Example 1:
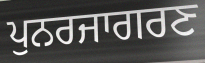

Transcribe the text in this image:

ਪੁਨਰਜਾਗਰਣ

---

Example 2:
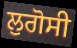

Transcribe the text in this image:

ਲੁਗੋਸੀ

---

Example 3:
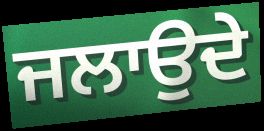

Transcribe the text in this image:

ਜਲਾਉਦੇ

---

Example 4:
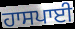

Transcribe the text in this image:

ਹਾਸਪਾਈ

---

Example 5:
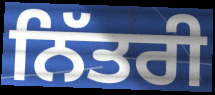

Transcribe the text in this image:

ਨਿੱਤਰੀ